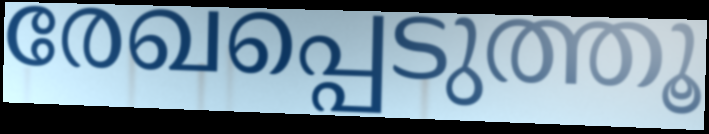
രേഖപ്പെടുത്തൂ